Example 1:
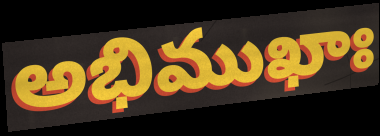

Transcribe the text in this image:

అభిముఖాః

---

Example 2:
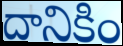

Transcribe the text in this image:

దానికిం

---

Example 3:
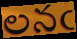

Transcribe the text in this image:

లనఁ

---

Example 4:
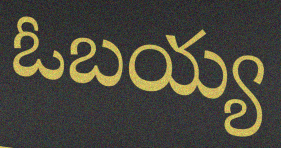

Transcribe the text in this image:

ఓబయ్య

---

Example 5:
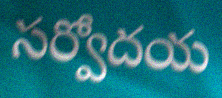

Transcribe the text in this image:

సర్వోదయ